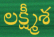
లక్ష్మీశ